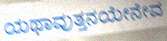
ಯಥಾವುತ್ತನಯೇನೇವ